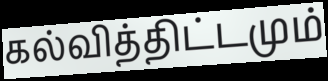
கல்வித்திட்டமும்